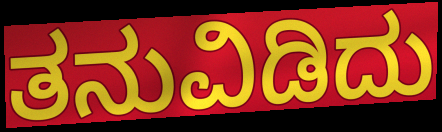
ತನುವಿಡಿದು